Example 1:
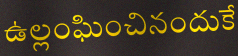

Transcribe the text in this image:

ఉల్లంఘించినందుకే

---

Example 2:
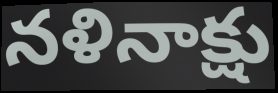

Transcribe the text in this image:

నళినాక్షు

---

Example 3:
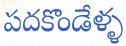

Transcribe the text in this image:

పదకొండేళ్ళ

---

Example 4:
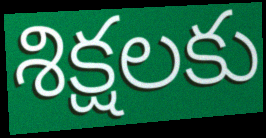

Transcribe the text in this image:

శిక్షలకు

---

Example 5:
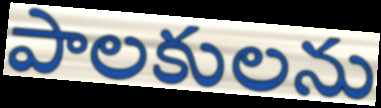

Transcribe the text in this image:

పాలకులను